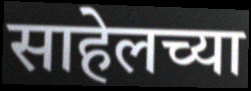
साहेलच्या